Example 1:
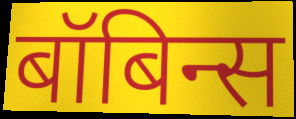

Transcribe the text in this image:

बॉबिन्स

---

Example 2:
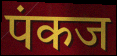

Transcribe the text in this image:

पंकज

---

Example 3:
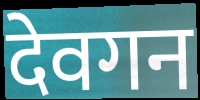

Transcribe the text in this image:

देवगन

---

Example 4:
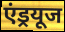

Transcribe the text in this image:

एंड्रयूज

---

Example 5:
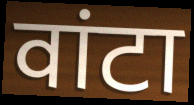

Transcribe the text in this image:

वांटा